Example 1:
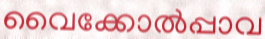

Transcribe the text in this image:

വൈക്കോൽപ്പാവ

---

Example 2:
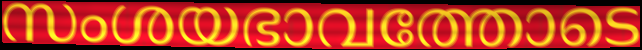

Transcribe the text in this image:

സംശയഭാവത്തോടെ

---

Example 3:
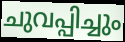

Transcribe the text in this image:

ചുവപ്പിച്ചും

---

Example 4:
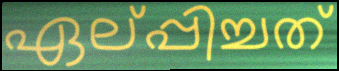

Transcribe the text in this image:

ഏല്പ്പിച്ചത്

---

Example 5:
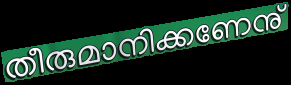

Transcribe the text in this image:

തീരുമാനിക്കണേനു്